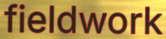
fieldwork